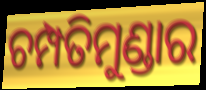
ଚମ୍ପତିମୁଣ୍ଡାର